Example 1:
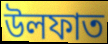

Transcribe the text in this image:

উলফাত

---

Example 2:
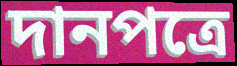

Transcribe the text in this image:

দানপত্রে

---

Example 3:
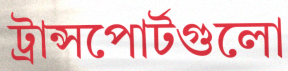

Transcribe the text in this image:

ট্রান্সপোর্টগুলো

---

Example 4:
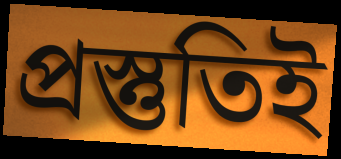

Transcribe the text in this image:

প্রস্তুতিই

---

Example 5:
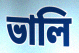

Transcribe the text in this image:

ভালি